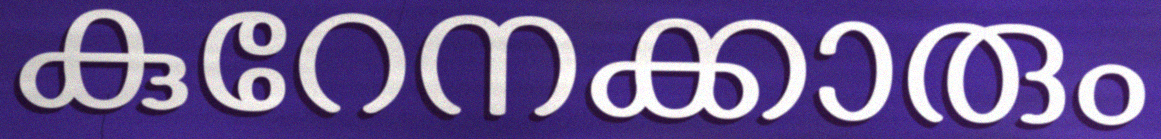
കുറേനക്കാരും